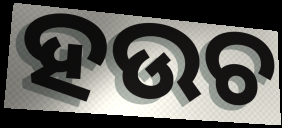
ହଉଚ